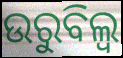
ଉରୁବିଲ୍ୱ